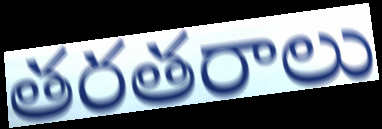
తరతరాలు